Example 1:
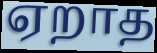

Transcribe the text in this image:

ஏறாத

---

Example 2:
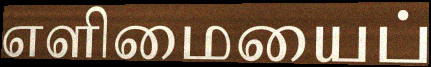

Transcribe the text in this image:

எளிமையைப்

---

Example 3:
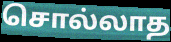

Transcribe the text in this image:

சொல்லாத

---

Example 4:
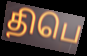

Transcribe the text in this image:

திபெ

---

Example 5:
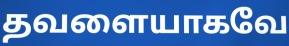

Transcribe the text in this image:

தவளையாகவே